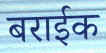
बराईक